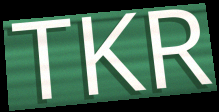
TKR